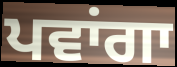
ਪਵਾਂਗਾ